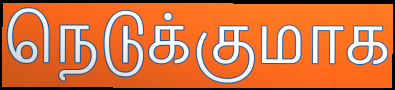
நெடுக்குமாக